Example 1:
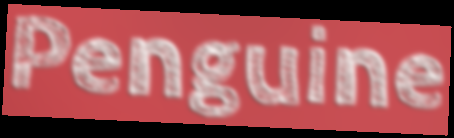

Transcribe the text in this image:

Penguine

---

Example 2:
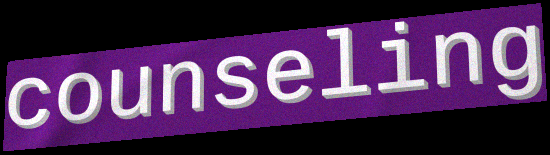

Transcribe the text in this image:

counseling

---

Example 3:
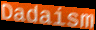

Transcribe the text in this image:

Dadaism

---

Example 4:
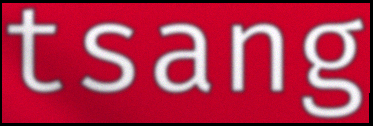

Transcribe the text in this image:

tsang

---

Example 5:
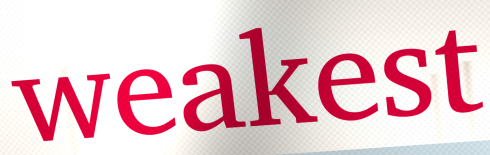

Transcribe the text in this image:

weakest